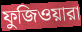
ফুজিওয়ারা